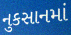
નુકસાનમાં